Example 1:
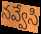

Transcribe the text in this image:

నవ్వేసి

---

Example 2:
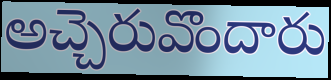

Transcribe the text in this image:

అచ్చెరువొందారు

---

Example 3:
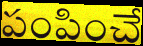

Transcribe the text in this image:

పంపించే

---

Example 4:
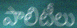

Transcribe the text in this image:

పాలిటీలు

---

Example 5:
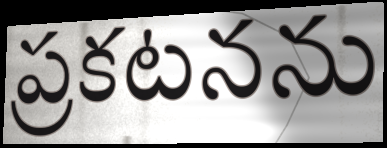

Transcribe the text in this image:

ప్రకటనను